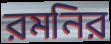
রমনির